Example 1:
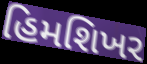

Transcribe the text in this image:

હિમશિખર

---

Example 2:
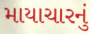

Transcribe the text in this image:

માયાચારનું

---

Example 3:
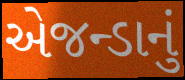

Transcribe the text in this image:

એજન્ડાનું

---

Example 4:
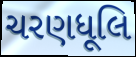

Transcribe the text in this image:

ચરણધૂલિ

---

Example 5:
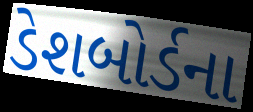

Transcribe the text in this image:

ડેશબોર્ડના